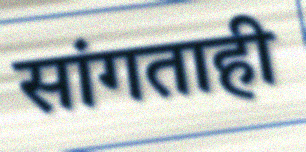
सांगताही